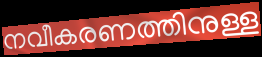
നവീകരണത്തിനുള്ള